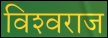
विश्वराज